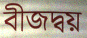
বীজদ্বয়